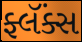
ફ્લૅંક્સ